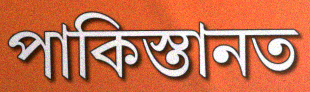
পাকিস্তানত